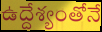
ఉద్దేశ్యంతోనే